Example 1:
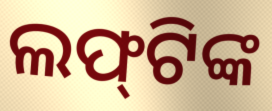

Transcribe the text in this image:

ଲଫ୍‌ଟିଙ୍କ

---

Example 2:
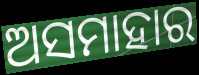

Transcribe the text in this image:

ଅସମାହାର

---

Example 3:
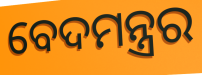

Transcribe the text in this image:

ବେଦମନ୍ତ୍ରର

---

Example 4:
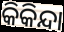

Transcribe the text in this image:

କିକିନ୍ଦା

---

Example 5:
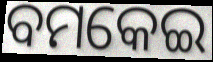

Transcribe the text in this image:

ବମକେଇ